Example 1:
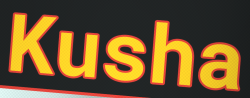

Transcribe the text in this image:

Kusha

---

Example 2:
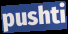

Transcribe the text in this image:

pushti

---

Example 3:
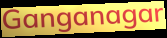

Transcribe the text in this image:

Ganganagar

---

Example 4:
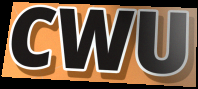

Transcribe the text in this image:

CWU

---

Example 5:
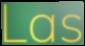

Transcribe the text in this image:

Las